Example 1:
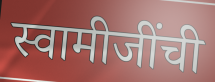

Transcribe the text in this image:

स्वामीजींची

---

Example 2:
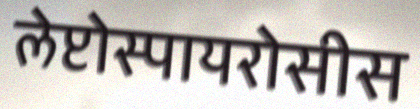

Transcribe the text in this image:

लेप्टोस्पायरोसीस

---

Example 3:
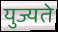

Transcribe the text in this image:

युज्यते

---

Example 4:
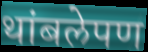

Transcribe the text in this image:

थांबलेपण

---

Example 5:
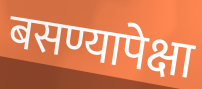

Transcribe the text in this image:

बसण्यापेक्षा